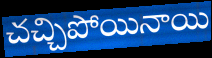
చచ్చిపోయినాయి